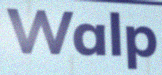
Walp